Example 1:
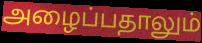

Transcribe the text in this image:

அழைப்பதாலும்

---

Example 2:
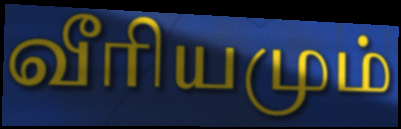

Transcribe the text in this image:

வீரியமும்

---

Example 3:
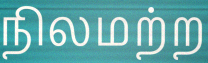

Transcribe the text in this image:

நிலமற்ற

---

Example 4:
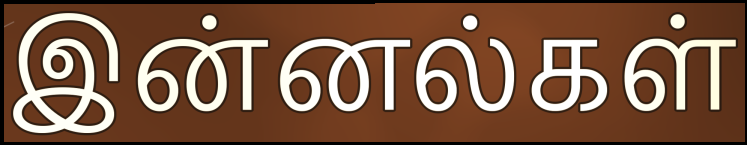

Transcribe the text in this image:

இன்னல்கள்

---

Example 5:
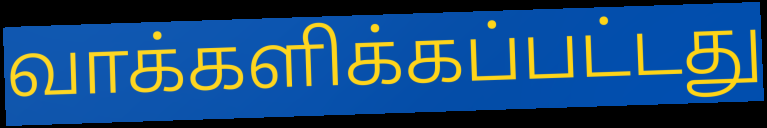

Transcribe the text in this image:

வாக்களிக்கப்பட்டது